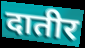
दातीर